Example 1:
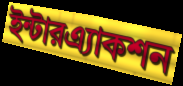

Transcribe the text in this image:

ইন্টারএ্যাকশন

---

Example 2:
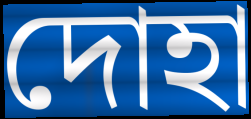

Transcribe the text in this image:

দোহা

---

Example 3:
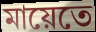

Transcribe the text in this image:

মায়েতে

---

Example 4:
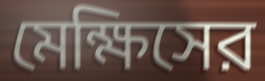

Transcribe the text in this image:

মেক্ষিসের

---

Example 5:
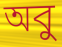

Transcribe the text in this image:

অবু